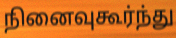
நினைவுகூர்ந்து